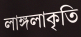
লাঙ্গলাকৃতি